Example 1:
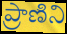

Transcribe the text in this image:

ప్రాణిని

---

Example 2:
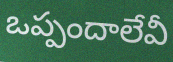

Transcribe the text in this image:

ఒప్పందాలేవీ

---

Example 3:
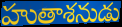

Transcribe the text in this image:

హుతాశనుడు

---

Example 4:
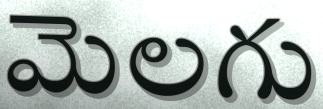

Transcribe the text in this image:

మెలగు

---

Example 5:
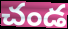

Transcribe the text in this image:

చండ